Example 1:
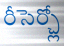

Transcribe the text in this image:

రీసెర్చ్లో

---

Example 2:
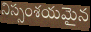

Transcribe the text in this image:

నిస్సంశయమైన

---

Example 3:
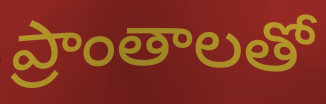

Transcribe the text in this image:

ప్రాంతాలతో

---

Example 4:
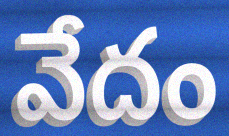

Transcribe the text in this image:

వేదం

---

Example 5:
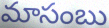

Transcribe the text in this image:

మాసంబు